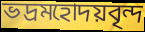
ভদ্রমহোদয়বৃন্দ